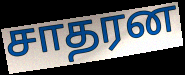
சாதரன